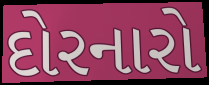
દોરનારો